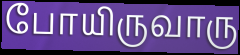
போயிருவாரு